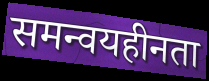
समन्वयहीनता